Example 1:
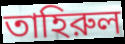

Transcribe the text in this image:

তাহিরুল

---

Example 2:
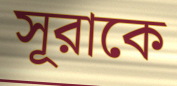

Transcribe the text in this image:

সূরাকে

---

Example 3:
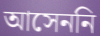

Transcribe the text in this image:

আসেননি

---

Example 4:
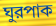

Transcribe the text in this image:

ঘুরপাক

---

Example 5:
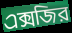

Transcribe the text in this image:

এক্সজির